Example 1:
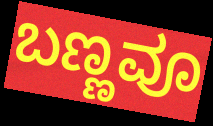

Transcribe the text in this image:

ಬಣ್ಣವೂ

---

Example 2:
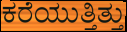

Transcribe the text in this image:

ಕರೆಯುತ್ತಿತ್ತು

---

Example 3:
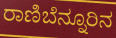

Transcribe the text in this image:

ರಾಣಿಬೆನ್ನೂರಿನ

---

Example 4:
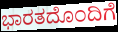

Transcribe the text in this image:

ಭಾರತದೊಂದಿಗೆ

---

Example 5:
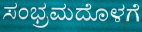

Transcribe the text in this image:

ಸಂಭ್ರಮದೊಳಗೆ